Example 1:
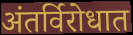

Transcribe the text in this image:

अंतर्विरोधात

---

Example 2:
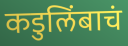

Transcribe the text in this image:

कडुलिंबाचं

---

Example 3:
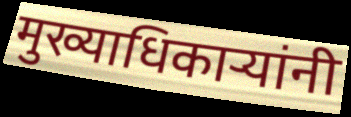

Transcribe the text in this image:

मुख्याधिकाऱ्यांनी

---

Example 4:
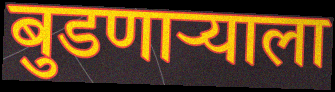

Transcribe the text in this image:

बुडणाऱ्याला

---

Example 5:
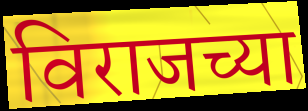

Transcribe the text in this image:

विराजच्या